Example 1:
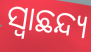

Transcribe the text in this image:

ସ୍ୱାଛନ୍ଦ୍ୟ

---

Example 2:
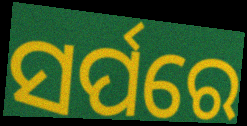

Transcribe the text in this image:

ସର୍ପରେ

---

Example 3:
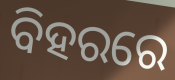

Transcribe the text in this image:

ବିହରରେ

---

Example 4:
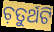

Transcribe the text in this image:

ଚ଼ତୁର୍ଥଟି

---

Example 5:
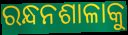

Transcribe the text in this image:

ରନ୍ଧନଶାଳାକୁ